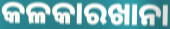
କଳକାରଖାନା